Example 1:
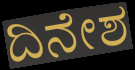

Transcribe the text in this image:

ದಿನೇಶ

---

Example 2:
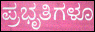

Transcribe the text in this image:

ಪ್ರಭೃತಿಗಳೂ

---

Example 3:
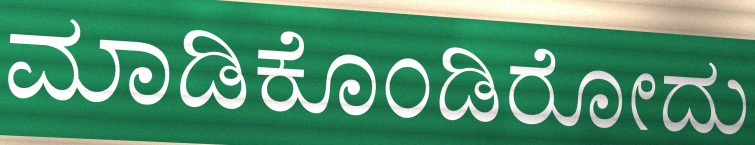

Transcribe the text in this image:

ಮಾಡಿಕೊಂಡಿರೋದು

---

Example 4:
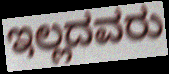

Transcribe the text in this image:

ಇಲ್ಲದವರು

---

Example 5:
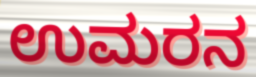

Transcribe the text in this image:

ಉಮರನ